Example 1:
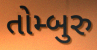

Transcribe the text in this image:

તોમ્બુરુ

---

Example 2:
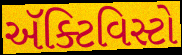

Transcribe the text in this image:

ઍક્ટિવિસ્ટો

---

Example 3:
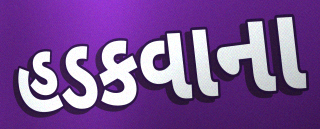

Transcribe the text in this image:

હડકવાના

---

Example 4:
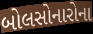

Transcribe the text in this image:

બોલસોનારોના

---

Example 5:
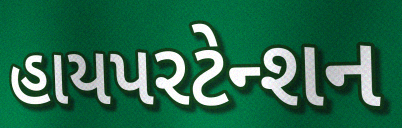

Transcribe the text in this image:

હાયપરટેન્શન